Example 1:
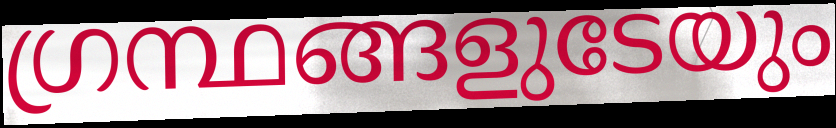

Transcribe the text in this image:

ഗ്രന്ഥങ്ങളുടേയും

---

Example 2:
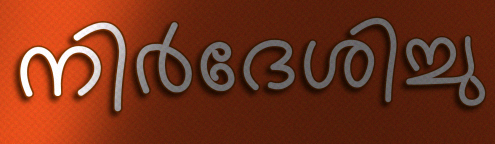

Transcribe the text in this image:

നിർദേശിച്ചു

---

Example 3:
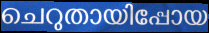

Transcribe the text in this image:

ചെറുതായിപ്പോയ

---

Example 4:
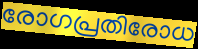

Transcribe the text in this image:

രോഗപ്രതിരോധ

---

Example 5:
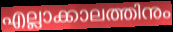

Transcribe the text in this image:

എല്ലാക്കാലത്തിനും